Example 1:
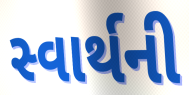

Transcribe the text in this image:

સ્વાર્થની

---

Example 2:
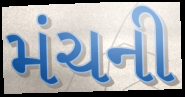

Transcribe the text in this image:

મંચની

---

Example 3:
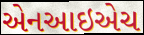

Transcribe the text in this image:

એનઆઇએચ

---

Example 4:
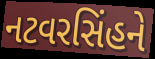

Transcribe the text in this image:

નટવરસિંહને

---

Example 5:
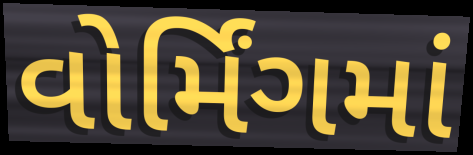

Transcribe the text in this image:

વોર્મિંગમાં